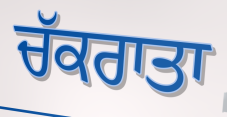
ਚੱਕਰਾਤਾ